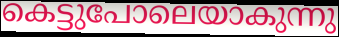
കെട്ടുപോലെയാകുന്നു